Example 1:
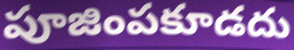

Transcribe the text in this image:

పూజింపకూడదు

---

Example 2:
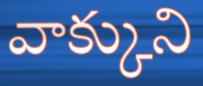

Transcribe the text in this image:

వాక్కుని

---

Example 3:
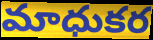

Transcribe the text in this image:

మాధుకర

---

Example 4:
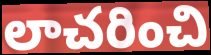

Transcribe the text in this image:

లాచరించి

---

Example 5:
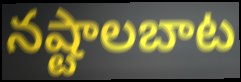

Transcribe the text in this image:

నష్టాలబాట